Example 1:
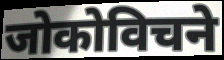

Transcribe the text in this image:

जोकोविचने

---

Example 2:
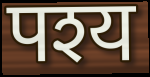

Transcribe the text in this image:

पश्य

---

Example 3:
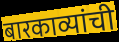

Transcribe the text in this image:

बारकाव्यांची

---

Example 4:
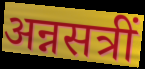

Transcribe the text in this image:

अन्नसत्रीं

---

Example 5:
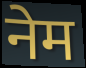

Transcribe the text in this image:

नेम